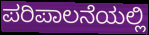
ಪರಿಪಾಲನೆಯಲ್ಲಿ